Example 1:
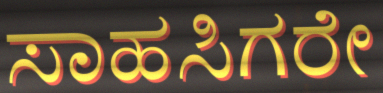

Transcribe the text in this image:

ಸಾಹಸಿಗರೇ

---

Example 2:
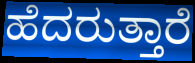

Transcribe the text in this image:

ಹೆದರುತ್ತಾರೆ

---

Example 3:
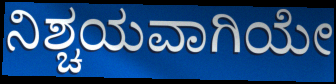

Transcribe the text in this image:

ನಿಶ್ಚಯವಾಗಿಯೇ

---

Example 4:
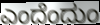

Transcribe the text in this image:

ಎಂದೆಂದುಂ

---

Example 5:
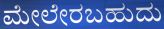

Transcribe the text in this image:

ಮೇಲೇರಬಹುದು